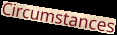
Circumstances